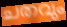
ചതവും